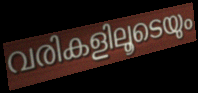
വരികളിലൂടെയും